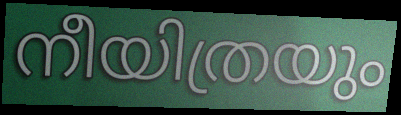
നീയിത്രയും